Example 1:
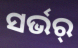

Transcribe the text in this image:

ସର୍ଭର୍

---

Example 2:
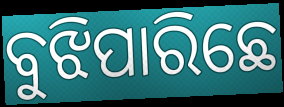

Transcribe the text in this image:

ବୁଝିପାରିଛେ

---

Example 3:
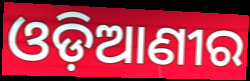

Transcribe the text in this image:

ଓଡ଼ିଆଣୀର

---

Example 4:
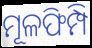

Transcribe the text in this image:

ମୂଳଫିମ୍ପି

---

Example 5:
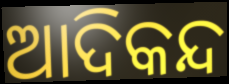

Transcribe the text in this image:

ଆଦିକନ୍ଦ